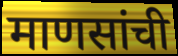
माणसांची